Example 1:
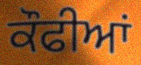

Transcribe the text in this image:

ਕੌਫੀਆਂ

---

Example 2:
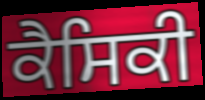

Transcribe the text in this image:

ਕੈਸਿਕੀ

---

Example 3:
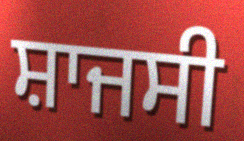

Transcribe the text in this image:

ਸ਼ਾਜਸੀ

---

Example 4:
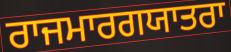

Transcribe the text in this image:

ਰਾਜਮਾਰਗਯਾਤਰਾ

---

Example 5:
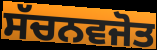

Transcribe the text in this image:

ਸੱਚਨਵਜੋਤ